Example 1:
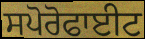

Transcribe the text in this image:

ਸਪੋਰੋਫਾਈਟ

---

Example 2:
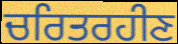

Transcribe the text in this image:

ਚਰਿਤਰਹੀਣ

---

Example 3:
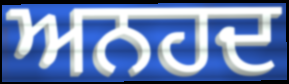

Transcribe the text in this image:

ਅਨਹਦ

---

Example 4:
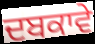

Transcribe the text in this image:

ਦਬਕਾਵੇ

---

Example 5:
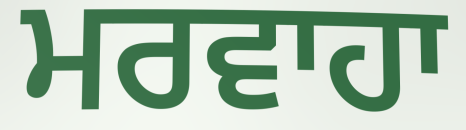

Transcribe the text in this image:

ਮਰਵਾਹਾ